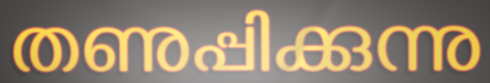
തണുപ്പിക്കുന്നു